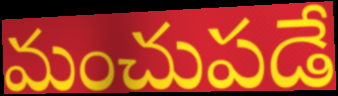
మంచుపడే